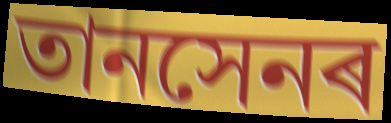
তানসেনৰ